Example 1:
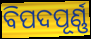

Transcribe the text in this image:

ବିପଦପୂର୍ଣ୍ଣ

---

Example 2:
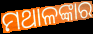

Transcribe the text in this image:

ମଥାଳଙ୍କାର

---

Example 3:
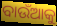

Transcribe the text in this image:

ବାଉଁଆକୁ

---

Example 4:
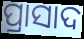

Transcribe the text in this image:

ପ୍ରାସାଦ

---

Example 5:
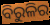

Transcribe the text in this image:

ବିରୁଳିର